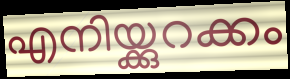
എനിയ്ക്കുറക്കം